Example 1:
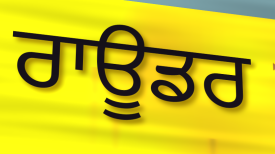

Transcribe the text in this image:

ਰਾਊਡਰ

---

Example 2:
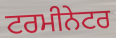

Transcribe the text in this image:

ਟਰਮੀਨੇਟਰ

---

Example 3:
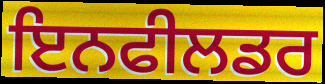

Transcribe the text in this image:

ਇਨਫੀਲਡਰ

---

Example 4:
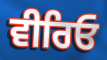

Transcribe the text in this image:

ਵੀਰਿਓ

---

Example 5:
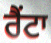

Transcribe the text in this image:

ਰੈਂਟਾ